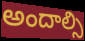
అందాల్సి